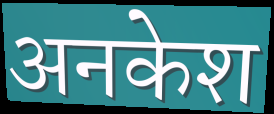
अनकेश